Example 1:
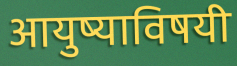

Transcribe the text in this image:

आयुष्याविषयी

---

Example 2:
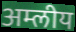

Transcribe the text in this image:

अम्‍लीय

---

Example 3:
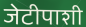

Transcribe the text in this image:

जेटीपाशी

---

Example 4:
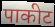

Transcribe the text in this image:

पाकीट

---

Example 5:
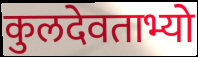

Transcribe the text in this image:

कुलदेवताभ्यो